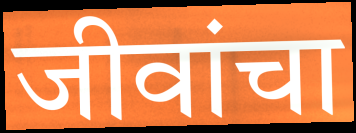
जीवांचा